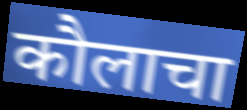
कौलाचा